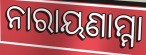
ନାରାୟଣାମ୍ମା